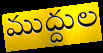
ముద్దుల